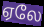
ஏலே